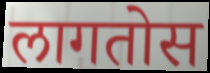
लागतोस